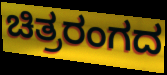
ಚಿತ್ರರಂಗದ